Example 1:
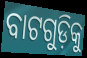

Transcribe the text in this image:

ବାଟଗୁଡ଼ିକୁ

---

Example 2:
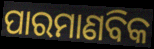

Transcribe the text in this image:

ପାରମାଣବିକ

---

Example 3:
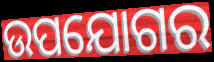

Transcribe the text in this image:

ଉପଯୋଗର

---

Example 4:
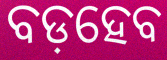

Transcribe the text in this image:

ବଡ଼ହେବ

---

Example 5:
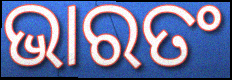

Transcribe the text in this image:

ଭାରତଂ